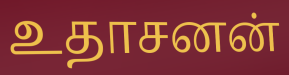
உதாசனன்